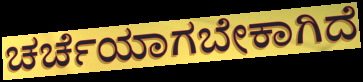
ಚರ್ಚೆಯಾಗಬೇಕಾಗಿದೆ